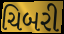
ચિબરી